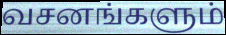
வசனங்களும்